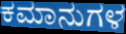
ಕಮಾನುಗಳ